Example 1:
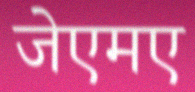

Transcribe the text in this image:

जेएमए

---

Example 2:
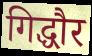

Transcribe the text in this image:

गिद्धौर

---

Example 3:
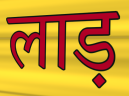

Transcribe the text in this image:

लाड़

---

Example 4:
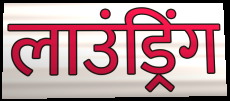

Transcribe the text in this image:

लाउंड्रिंग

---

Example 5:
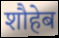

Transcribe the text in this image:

शौहेब